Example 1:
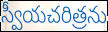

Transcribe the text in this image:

స్వీయచరిత్రను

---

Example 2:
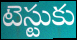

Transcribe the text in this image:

టెస్టుకు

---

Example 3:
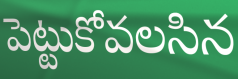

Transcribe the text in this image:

పెట్టుకోవలసిన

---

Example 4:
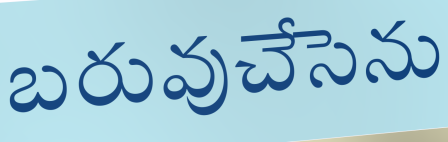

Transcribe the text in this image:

బరువుచేసెను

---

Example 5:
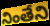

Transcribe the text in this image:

నింతేని